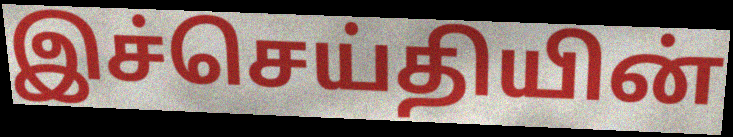
இச்செய்தியின்